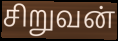
சிறுவன்